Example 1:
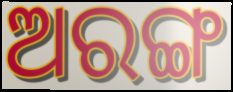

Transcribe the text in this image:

ଅରଙ୍ଗ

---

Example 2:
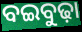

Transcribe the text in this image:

ବଇବୁଢ଼ା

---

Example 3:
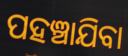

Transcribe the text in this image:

ପହଞ୍ଚାଯିବା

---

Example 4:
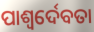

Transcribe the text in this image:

ପାଶ୍ୱର୍ଦେବତା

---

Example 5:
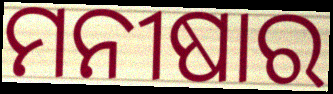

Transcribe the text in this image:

ମନୀଷାର